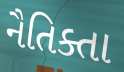
નૈતિક્તા